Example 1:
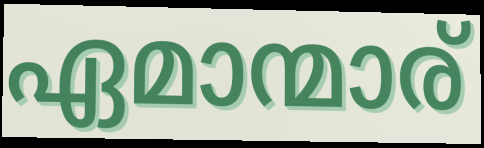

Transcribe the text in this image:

ഏമാന്മാര്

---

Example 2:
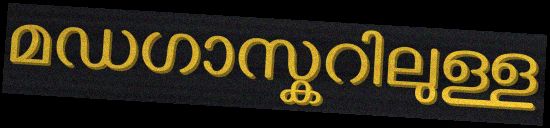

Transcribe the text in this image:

മഡഗാസ്കറിലുള്ള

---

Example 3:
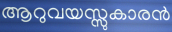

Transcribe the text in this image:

ആറുവയസ്സുകാരൻ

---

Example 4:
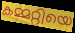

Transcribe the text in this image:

കമ്മറ്റിയെ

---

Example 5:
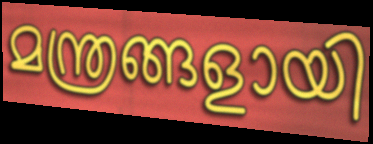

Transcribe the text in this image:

മന്ത്രങ്ങളായി